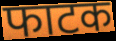
फाटक